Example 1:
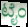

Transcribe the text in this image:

ಟೈಂ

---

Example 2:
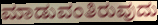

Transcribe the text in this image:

ಮಾಡುವಂತಿರುವುದು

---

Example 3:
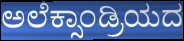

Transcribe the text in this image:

ಅಲೆಕ್ಸಾಂಡ್ರಿಯದ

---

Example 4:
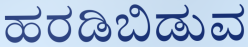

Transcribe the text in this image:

ಹರಡಿಬಿಡುವ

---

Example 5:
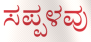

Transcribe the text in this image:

ಸಪ್ಪಳವು